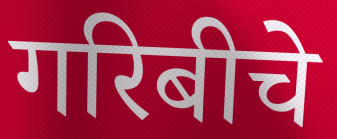
गरिबीचे